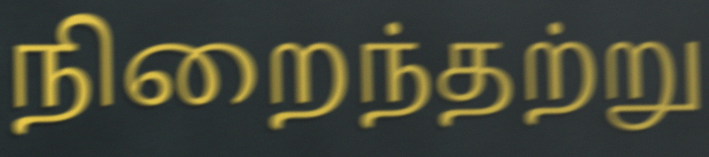
நிறைந்தற்று